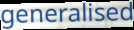
generalised